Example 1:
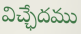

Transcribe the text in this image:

విచ్ఛేదము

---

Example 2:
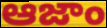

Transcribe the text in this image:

ఆజాం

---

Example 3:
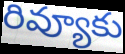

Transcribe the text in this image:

రివ్యూకు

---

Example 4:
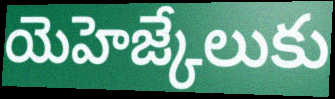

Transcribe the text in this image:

యెహెజ్కేలుకు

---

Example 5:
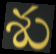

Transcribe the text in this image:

శు